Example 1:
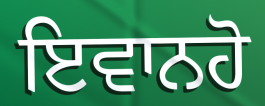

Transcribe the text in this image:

ਇਵਾਨਹੋ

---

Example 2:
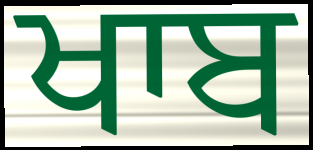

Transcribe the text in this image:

ਖਾਬ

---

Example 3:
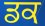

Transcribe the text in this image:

ਡਕ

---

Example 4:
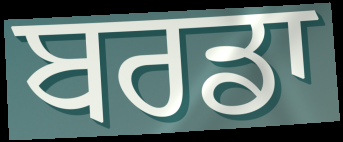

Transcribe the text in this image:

ਬਰਡਾ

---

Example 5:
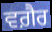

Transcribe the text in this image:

ਵਗ਼ੈਰ